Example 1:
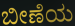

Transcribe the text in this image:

ಬೀಣೆಯ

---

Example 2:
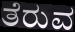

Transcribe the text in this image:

ತೆರುವ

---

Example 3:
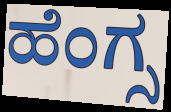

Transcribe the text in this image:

ಹೆಂಗ್ಸ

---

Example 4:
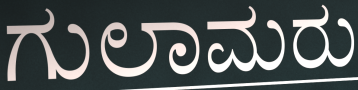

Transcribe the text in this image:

ಗುಲಾಮರು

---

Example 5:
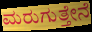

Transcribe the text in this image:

ಮರುಗುತ್ತೇನೆ